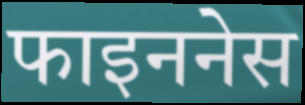
फाइननेस